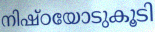
നിഷ്ഠയോടുകൂടി